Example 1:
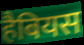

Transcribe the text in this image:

हैबियस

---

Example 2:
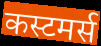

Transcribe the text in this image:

कस्टमर्स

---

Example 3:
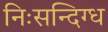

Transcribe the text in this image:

निःसन्दिग्ध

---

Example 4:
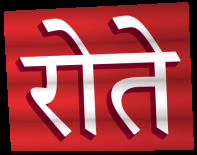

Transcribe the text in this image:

रोते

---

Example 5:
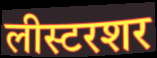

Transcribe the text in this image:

लीस्टरशर